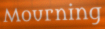
Mourning